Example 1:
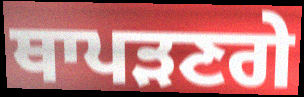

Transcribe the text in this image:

ਥਾਪੜਣਗੇ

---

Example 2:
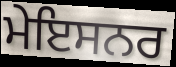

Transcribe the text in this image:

ਮੇਇਸਨਰ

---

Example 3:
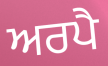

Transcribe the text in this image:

ਅਰਪੈ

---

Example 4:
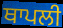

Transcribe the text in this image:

ਥਾਪਲੀ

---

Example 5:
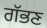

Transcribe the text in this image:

ਗੱਭਣ